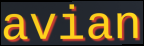
avian